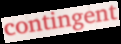
contingent